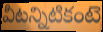
వీటన్నిటికంటె